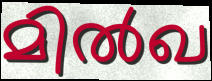
മിൽഖ